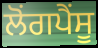
ਲੋਂਗਪੈਂਸੂ